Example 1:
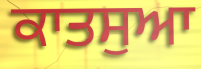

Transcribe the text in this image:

ਕਾਤਸੁਆ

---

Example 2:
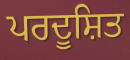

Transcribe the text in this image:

ਪਰਦੂਸ਼ਿਤ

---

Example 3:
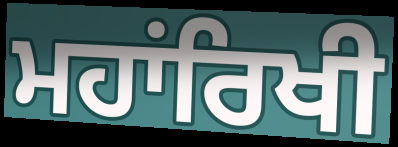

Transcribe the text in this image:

ਮਹਾਂਰਿਖੀ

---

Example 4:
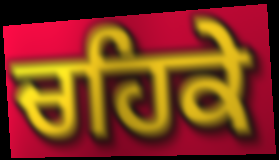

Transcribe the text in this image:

ਚਹਿਕੇ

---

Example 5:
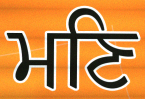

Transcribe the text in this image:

ਮਣਿ